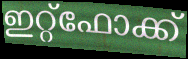
ഇറ്റ്ഫോക്ക്